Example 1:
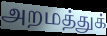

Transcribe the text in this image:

அறமத்துக்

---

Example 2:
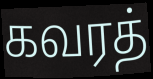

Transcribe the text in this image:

கவரத்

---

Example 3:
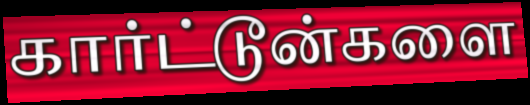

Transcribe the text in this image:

கார்ட்டூன்களை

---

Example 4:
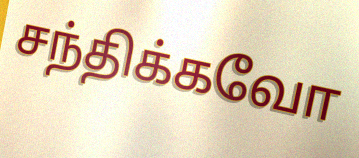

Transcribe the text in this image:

சந்திக்கவோ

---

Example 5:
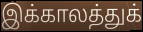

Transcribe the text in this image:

இக்காலத்துக்